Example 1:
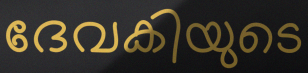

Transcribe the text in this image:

ദേവകിയുടെ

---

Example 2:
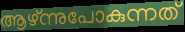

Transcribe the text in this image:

ആഴ്ന്നുപോകുന്നത്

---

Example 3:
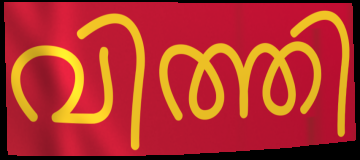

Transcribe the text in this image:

വിത്തി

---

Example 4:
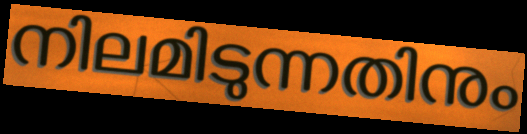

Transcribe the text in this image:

നിലമിടുന്നതിനും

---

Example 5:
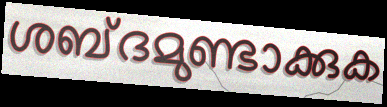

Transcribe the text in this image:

ശബ്ദമുണ്ടാക്കുക